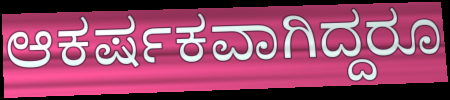
ಆಕರ್ಷಕವಾಗಿದ್ದರೂ